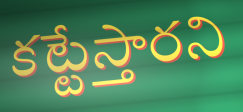
కట్టేస్తారని